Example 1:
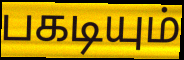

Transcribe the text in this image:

பகடியும்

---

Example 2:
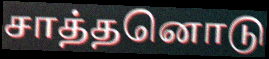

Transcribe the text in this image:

சாத்தனொடு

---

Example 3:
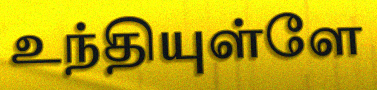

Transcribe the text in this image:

உந்தியுள்ளே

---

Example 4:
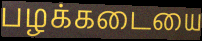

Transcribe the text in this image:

பழக்கடையை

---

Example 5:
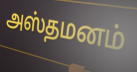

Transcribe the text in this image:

அஸ்தமனம்